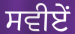
ਸਵੀਏਂ